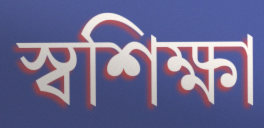
স্বশিক্ষা